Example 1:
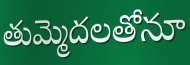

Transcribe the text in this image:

తుమ్మెదలతోనూ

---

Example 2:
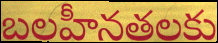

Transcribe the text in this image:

బలహీనతలకు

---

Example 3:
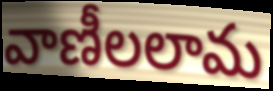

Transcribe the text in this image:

వాణీలలామ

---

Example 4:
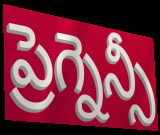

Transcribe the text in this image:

ప్రెగ్నెన్సీ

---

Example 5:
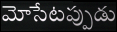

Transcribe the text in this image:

మోసేటప్పుడు